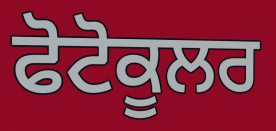
ਫੋਟੋਕੂਲਰ